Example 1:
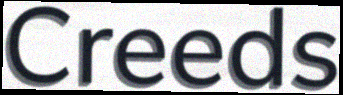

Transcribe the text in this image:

Creeds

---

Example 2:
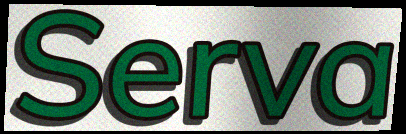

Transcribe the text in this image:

Serva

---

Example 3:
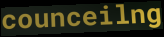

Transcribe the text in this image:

counceilng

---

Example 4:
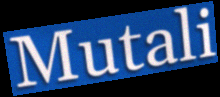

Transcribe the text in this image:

Mutali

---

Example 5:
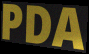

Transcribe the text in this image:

PDA